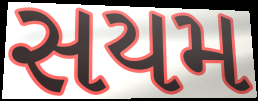
સયમ